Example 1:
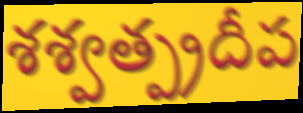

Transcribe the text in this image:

శశ్వత్ప్రదీప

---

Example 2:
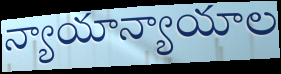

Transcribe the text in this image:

న్యాయాన్యాయాల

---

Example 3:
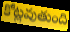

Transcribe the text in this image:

కోట్లవుతుంది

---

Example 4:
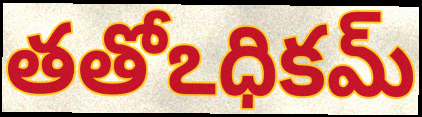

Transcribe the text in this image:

తతోఽధికమ్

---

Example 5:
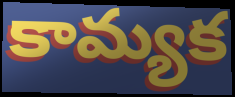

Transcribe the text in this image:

కామ్యక